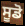
ਸੂਡੋ